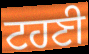
ਟਹਣੀ